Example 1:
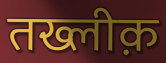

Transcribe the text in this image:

तख्लीक़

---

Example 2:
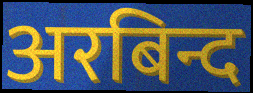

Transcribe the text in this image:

अरबिन्द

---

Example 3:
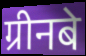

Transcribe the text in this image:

ग्रीनबे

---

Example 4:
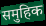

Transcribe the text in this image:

समुहिक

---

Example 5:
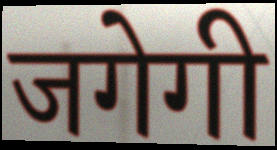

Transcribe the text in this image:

जगेगी